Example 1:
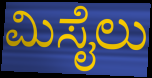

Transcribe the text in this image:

ಮಿಸೈಲು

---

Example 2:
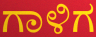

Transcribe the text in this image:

ಗಾಳಿಗ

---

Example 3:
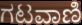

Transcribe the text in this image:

ಗಟವಾಣಿ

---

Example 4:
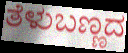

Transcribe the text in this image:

ತೆಳುಬಣ್ಣದ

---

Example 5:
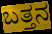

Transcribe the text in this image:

ಬತ್ತನ